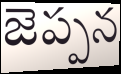
జెప్పన